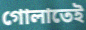
গোলাতেই